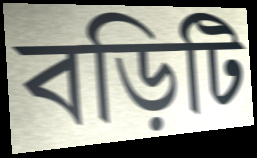
বড়িটি